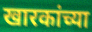
खारकांच्या